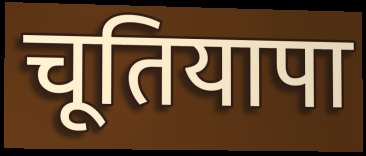
चूतियापा